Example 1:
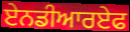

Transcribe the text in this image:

ਏਨਡੀਆਰਏਫ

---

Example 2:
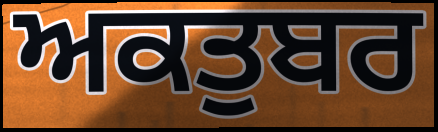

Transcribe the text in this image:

ਅਕਤੁਬਰ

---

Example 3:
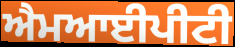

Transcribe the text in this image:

ਐਮਆਈਪੀਟੀ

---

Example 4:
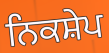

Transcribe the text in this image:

ਨਿਕਸ਼ੇਪ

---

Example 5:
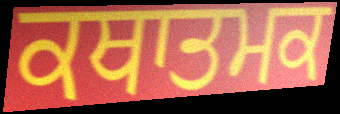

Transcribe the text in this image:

ਕਥਾਤਮਕ